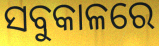
ସବୁକାଳରେ